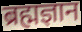
ब्रह्मज्ञान